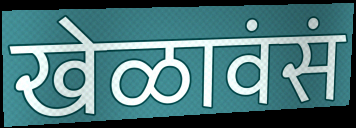
खेळावंसं